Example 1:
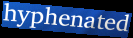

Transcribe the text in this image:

hyphenated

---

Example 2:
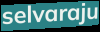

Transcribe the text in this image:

selvaraju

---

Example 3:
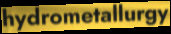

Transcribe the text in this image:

hydrometallurgy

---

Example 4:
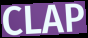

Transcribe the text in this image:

CLAP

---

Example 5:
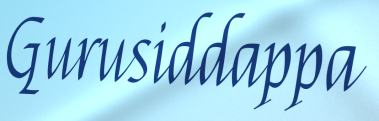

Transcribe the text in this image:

Gurusiddappa